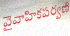
వైవాహికపర్వణి